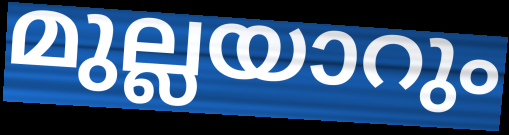
മുല്ലയാറും